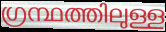
ഗ്രന്ഥത്തിലുള്ള